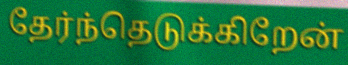
தேர்ந்தெடுக்கிறேன்